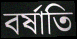
বর্ষাতি